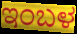
ಇಂಬಳ